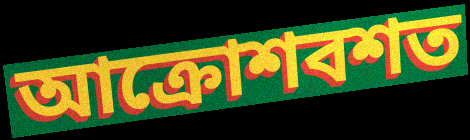
আক্রোশবশত